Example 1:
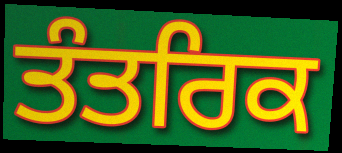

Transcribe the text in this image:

ਤੰਤਰਿਕ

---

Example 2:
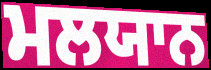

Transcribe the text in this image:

ਮਲਯਾਨ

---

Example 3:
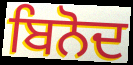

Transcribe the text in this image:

ਬਿਨੋਦ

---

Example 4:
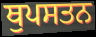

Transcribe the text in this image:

ਥੁਪਸਤਨ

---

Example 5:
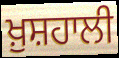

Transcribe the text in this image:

ਖ਼ੁਸ਼ਹਾਲੀ